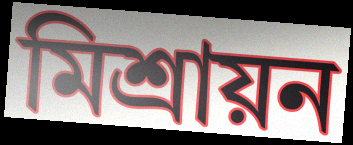
মিশ্রায়ন